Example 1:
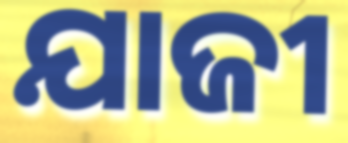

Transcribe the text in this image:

ଯାଜୀ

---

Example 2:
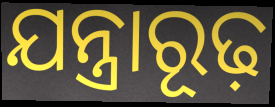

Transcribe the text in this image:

ଯନ୍ତ୍ରାରୂଢ଼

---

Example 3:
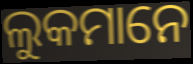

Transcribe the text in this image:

ଲୁକମାନେ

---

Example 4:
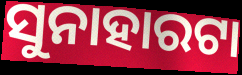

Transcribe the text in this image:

ସୁନାହାରଟା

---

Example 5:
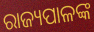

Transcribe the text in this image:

ରାଜ୍ୟପାଳଙ୍କ